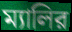
ম্যালির